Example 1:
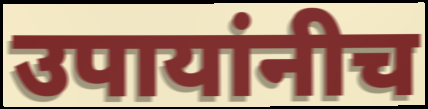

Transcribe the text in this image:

उपायांनीच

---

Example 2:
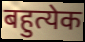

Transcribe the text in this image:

बहुत्येक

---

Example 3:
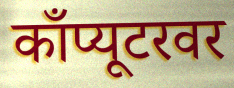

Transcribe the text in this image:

काँप्यूटरवर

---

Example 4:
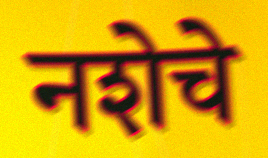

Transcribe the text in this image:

नशेचे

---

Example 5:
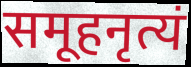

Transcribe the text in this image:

समूहनृत्यं